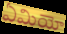
ఏమియో